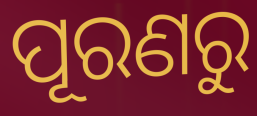
ପୂରଣରୁ